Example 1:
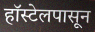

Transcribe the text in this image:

हॉस्टेलपासून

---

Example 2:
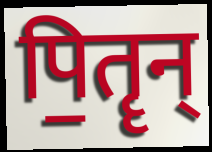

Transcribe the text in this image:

पि॒तॄन्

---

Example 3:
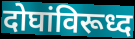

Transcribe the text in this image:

दोघांविरूध्द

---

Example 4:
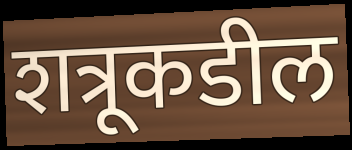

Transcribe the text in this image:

शत्रूकडील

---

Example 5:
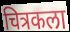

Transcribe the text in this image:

चित्रकला